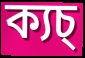
ক্যচ্